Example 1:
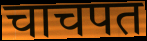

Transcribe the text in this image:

चाचपत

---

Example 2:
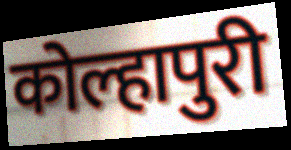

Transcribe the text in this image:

कोल्हापुरी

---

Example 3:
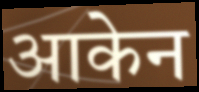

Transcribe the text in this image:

आकेन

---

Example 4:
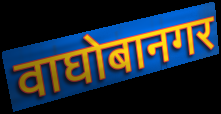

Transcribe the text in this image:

वाघोबानगर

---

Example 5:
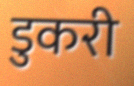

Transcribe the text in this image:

डुकरी